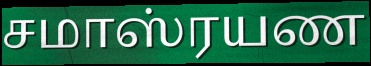
சமாஸ்ரயண